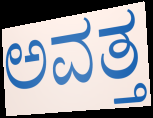
ಅವತ್ತ